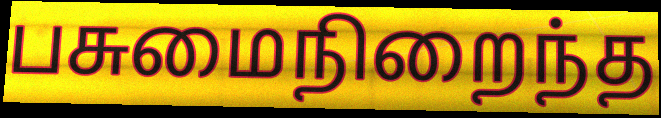
பசுமைநிறைந்த